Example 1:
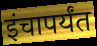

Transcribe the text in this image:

इंचापर्यंत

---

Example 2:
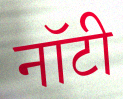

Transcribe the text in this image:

नॉटी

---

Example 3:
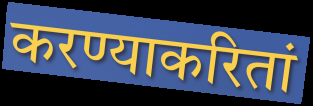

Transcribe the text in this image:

करण्याकरितां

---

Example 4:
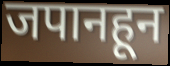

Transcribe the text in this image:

जपानहून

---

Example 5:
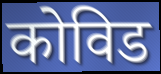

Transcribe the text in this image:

कोविड